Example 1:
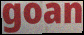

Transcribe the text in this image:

goan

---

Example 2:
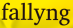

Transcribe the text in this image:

fallyng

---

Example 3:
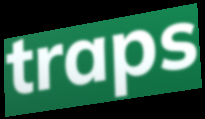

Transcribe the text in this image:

traps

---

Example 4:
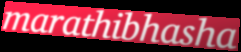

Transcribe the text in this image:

marathibhasha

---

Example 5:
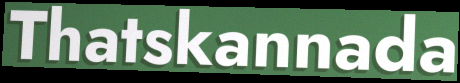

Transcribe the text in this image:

Thatskannada